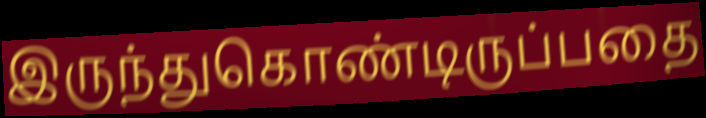
இருந்துகொண்டிருப்பதை